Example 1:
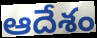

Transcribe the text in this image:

ఆదేశం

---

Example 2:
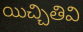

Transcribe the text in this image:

యిచ్చితివి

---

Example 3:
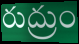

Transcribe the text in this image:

రుద్రుం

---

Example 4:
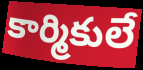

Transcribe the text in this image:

కార్మికులే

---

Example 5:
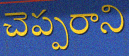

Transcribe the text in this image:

చెప్పరాని